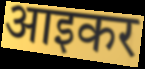
आइकर